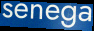
senega